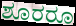
ಶೂರರೂ